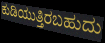
ಕುಡಿಯುತ್ತಿರಬಹುದು